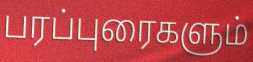
பரப்புரைகளும்